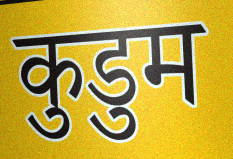
कुडुम